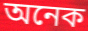
অনেক